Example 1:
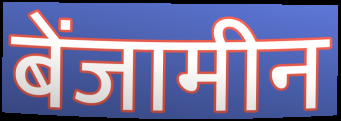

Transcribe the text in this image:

बेंजामीन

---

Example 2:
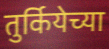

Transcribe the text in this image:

तुर्कियेच्या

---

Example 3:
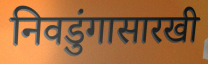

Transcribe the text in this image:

निवडुंगासारखी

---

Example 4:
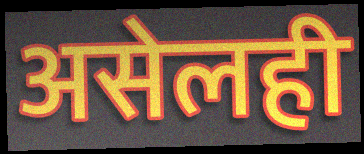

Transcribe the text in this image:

असेलही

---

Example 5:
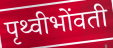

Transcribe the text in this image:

पृथ्वीभोंवती